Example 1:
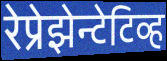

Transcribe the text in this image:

रेप्रेझेन्टेटिव्ह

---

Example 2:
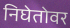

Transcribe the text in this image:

निघेतोवर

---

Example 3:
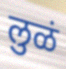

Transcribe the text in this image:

लुळं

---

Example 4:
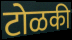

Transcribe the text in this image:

टोळकी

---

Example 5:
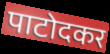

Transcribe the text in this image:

पाटोदकर